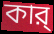
কার্